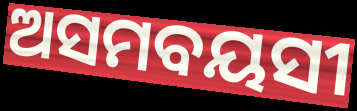
ଅସମବୟସୀ